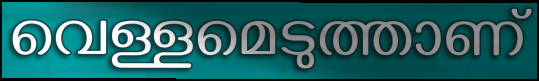
വെള്ളമെടുത്താണ്